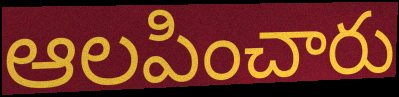
ఆలపించారు